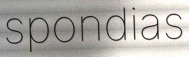
spondias